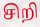
சிறி